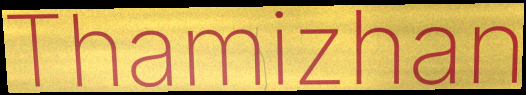
Thamizhan